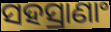
ସହସ୍ରାଣାଂ